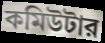
কমিউটার